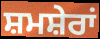
ਸ਼ਮਸ਼ੇਰਾਂ